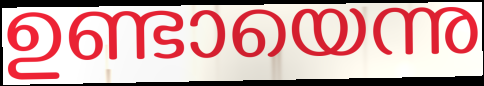
ഉണ്ടായെന്നു